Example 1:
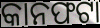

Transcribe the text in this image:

କାନଫଟା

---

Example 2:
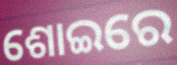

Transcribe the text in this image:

ଶୋଇରେ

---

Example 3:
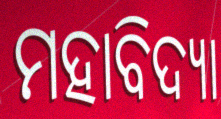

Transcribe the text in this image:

ମହାବିଦ୍ୟା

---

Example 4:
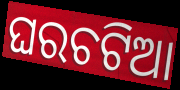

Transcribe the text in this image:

ଘରଚଟିଆ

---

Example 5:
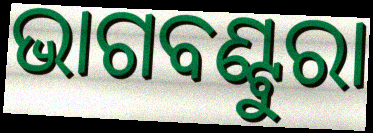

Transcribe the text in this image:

ଭାଗବଣ୍ଟୁରା